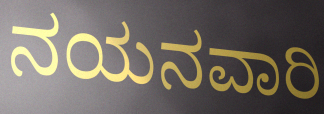
ನಯನವಾರಿ